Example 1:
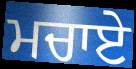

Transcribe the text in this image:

ਮਚਾਏ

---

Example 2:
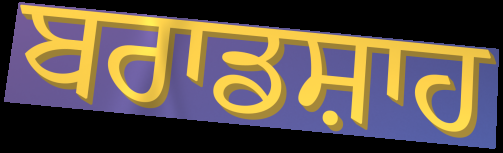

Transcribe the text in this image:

ਬਰਾਡਸ਼ਾਹ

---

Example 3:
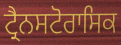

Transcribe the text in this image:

ਟ੍ਰੈਨਸਟੋਰਾਸਿਕ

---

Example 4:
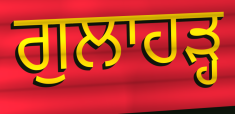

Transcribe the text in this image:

ਗੁਲਾਹੜ੍ਹ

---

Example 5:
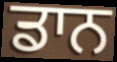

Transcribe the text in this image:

ਡਾਨ